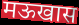
मऊखास